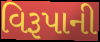
વિરૂપાની